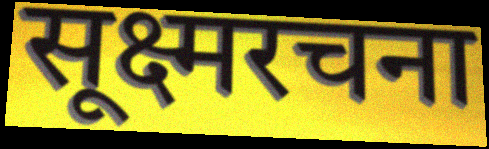
सूक्ष्मरचना